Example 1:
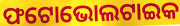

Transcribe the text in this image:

ଫଟୋଭୋଲଟାଇକ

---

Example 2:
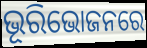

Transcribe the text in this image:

ଭୂରିଭୋଜନରେ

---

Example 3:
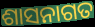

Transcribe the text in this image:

ଶାସନାଗତ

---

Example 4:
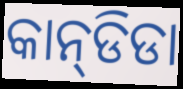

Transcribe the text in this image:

କାନ୍‌ଡିଡା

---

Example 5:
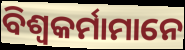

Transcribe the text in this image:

ବିଶ୍ଵକର୍ମାମାନେ